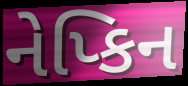
નેપ્કિન